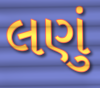
લણું